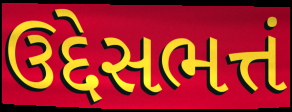
ઉદ્દેસભત્તં